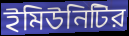
ইমিউনিটির